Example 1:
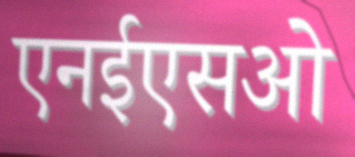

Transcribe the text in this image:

एनईएसओ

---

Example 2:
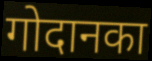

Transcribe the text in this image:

गोदानका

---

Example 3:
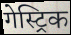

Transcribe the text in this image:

गेस्ट्रिक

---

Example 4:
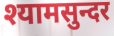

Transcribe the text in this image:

श्यामसुन्दर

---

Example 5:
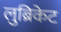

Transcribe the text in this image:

लुब्रिकेट